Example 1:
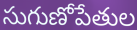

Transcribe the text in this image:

సుగుణోపేతుల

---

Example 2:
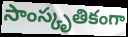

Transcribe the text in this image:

సాంస్కృతికంగా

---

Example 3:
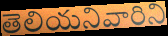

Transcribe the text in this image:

తెలియనివారిని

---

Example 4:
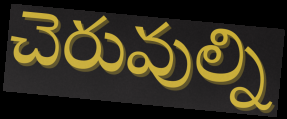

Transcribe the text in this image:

చెరువుల్ని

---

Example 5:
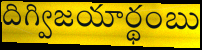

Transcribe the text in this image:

దిగ్విజయార్థంబు